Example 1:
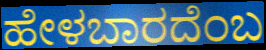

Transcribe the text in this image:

ಹೇಳಬಾರದೆಂಬ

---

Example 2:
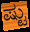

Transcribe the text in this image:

ಷ್ಟು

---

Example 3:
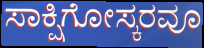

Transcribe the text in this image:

ಸಾಕ್ಷಿಗೋಸ್ಕರವೂ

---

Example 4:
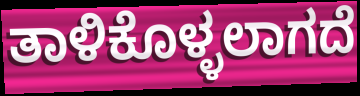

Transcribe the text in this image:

ತಾಳಿಕೊಳ್ಳಲಾಗದೆ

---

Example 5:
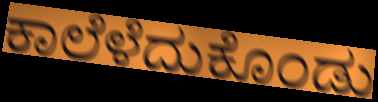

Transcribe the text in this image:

ಕಾಲೆಳೆದುಕೊಂಡು